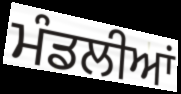
ਮੰਡਲੀਆਂ